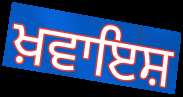
ਖ਼ਵਾਇਸ਼